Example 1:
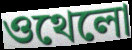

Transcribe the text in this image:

ওথেলো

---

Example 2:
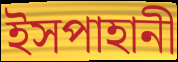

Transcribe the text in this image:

ইসপাহানী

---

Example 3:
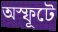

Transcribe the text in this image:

অস্ফূটে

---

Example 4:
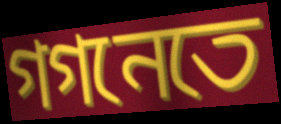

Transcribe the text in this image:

গগনেতে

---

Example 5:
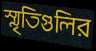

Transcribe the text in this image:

স্মৃতিগুলির